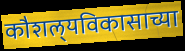
कौशल्यविकासाच्या